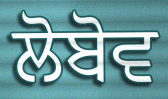
ਲੋਬੋਵ